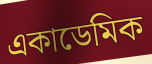
একাডেমিক